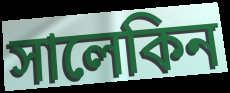
সালেকিন